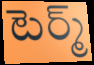
టెర్మ్